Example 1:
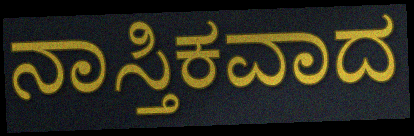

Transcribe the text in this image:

ನಾಸ್ತಿಕವಾದ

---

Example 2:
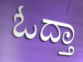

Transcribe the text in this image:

ಓದ್ತಾ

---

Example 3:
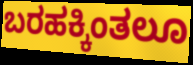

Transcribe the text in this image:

ಬರಹಕ್ಕಿಂತಲೂ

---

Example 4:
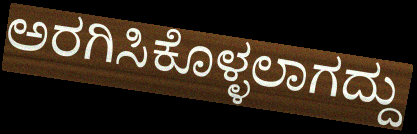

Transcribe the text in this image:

ಅರಗಿಸಿಕೊಳ್ಳಲಾಗದ್ದು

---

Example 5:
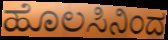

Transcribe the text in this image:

ಹೊಲಸಿನಿಂದ